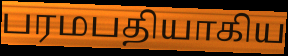
பரமபதியாகிய